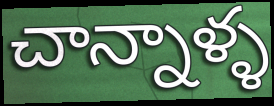
చాన్నాళ్ళ